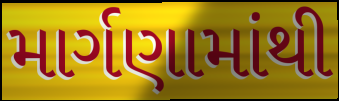
માર્ગણામાંથી